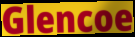
Glencoe